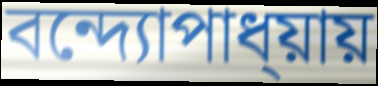
বন্দ্যোপাধ্য়ায়